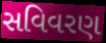
સવિવરણ